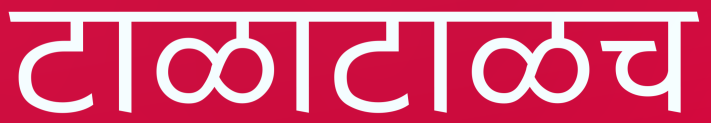
टाळाटाळच